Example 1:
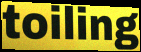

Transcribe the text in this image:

toiling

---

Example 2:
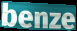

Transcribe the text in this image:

benze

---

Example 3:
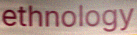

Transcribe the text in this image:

ethnology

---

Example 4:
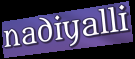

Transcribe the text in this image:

nadiyalli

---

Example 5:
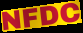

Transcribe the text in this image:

NFDC